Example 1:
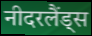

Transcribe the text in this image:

नीदरलैंड्स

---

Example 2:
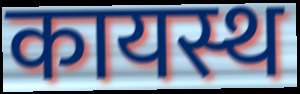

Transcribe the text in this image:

कायस्थ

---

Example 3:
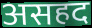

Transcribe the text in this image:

असहद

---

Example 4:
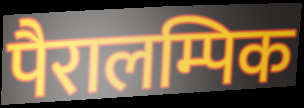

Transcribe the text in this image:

पैरालम्पिक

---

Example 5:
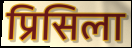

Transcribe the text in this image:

प्रिसिला